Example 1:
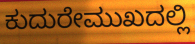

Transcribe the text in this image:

ಕುದುರೇಮುಖದಲ್ಲಿ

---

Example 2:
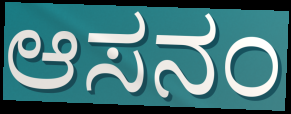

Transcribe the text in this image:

ಆಸನಂ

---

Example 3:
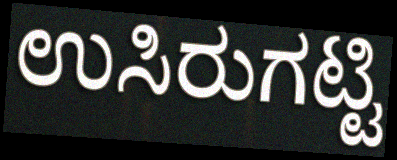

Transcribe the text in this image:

ಉಸಿರುಗಟ್ಟಿ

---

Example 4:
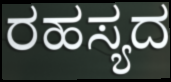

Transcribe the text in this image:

ರಹಸ್ಯದ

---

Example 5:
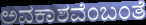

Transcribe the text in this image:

ಅವಕಾಶವೆಂಬಂತೆ